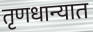
तृणधान्यात